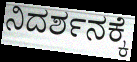
ನಿದರ್ಶನಕ್ಕೆ